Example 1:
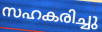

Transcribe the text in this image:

സഹകരിച്ചു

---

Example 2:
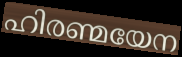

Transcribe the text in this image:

ഹിരണ്മയേന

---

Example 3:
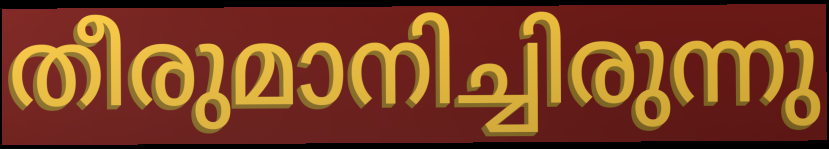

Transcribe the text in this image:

തീരുമാനിച്ചിരുന്നു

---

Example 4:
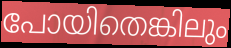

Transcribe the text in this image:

പോയിതെങ്കിലും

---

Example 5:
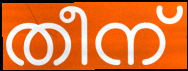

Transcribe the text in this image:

തീന്